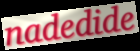
nadedide